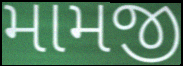
મામજી